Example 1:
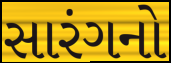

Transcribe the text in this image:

સારંગનો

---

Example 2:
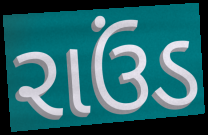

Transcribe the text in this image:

રાઉંડ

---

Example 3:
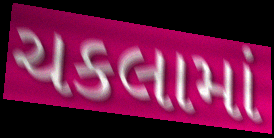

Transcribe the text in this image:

ચકલામાં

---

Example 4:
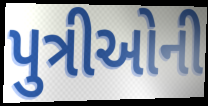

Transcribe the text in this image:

પુત્રીઓની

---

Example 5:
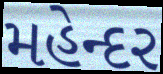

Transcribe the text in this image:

મહેન્દર